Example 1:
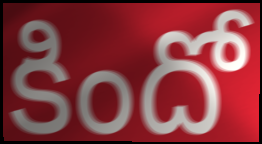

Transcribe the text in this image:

కిందో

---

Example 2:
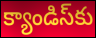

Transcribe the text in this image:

క్యాండిస్‌కు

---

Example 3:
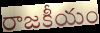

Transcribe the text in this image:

రాజకీయం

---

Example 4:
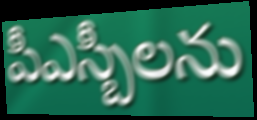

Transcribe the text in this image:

పీఎస్బీలను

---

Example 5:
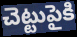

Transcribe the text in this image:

చెట్టుపైకి